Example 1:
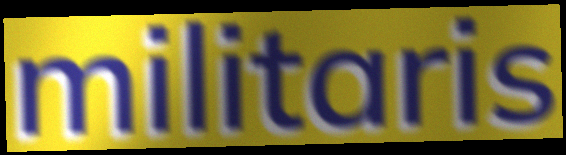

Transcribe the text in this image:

militaris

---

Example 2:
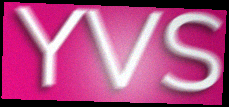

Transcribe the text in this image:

YVS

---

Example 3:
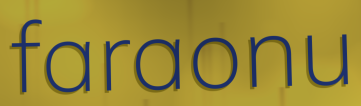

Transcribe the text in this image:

faraonu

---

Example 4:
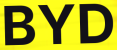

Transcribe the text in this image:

BYD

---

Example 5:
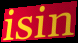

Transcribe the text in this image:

isin